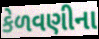
કેળવણીના